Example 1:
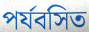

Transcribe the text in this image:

পর্যবসিত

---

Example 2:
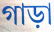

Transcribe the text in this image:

গাড়া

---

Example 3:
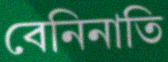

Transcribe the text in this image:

বেনিনাতি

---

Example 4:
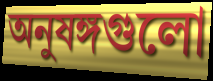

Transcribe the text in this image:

অনুষঙ্গগুলো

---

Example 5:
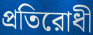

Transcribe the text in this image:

প্রতিরোধী